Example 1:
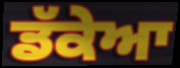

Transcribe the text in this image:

ਡੱਕੇਆ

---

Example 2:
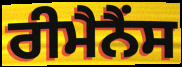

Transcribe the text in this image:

ਰੀਮੈਨੈਂਸ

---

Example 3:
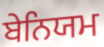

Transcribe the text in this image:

ਬੇਨਿਯਮ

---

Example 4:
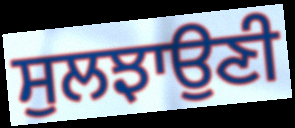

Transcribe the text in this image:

ਸੁਲਝਾਉਣੀ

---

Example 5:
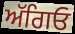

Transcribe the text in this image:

ਅੱਗਿਓ